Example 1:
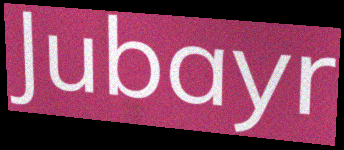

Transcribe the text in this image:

Jubayr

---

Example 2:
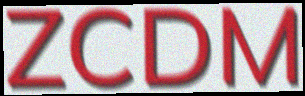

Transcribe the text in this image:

ZCDM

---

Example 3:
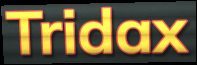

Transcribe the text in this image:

Tridax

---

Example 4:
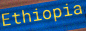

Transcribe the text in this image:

Ethiopia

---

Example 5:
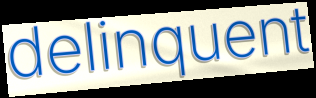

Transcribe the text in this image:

delinquent